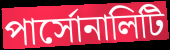
পার্সোনালিটি